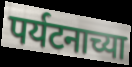
पर्यटनाच्या